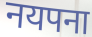
नयपना